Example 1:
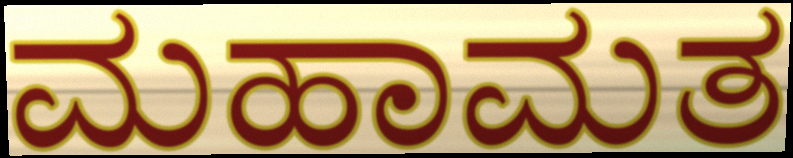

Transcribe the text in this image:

ಮಹಾಮತ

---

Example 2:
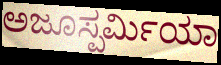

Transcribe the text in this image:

ಅಜೂಸ್ಪರ್ಮಿಯಾ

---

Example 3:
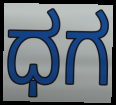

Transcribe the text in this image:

ಧಗ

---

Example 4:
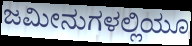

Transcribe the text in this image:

ಜಮೀನುಗಳಲ್ಲಿಯೂ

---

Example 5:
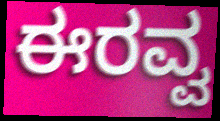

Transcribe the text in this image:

ಈರವ್ವ